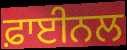
ਫ਼ਾਈਨਲ